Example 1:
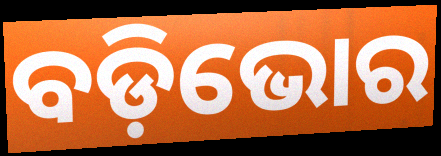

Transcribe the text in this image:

ବଡ଼ିଭୋର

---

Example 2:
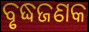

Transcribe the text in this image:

ବୃଦ୍ଧଜଣକ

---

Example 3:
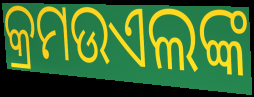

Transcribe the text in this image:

କ୍ରମଉଏଲଙ୍କ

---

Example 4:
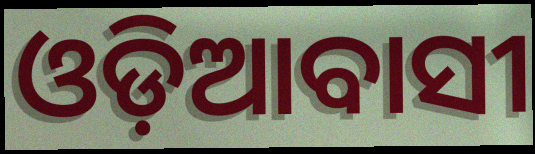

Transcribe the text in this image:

ଓଡ଼ିଆବାସୀ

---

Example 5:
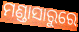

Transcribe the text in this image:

ମଣ୍ଡାସାରୁରେ